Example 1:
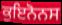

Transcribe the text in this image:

ਕੁਇਨੋਨਸ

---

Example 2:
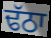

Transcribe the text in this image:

ਢੱਠਾ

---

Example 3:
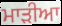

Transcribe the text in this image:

ਮਾੜੀਆ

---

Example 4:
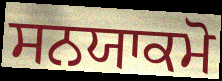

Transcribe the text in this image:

ਸਨਯਾਕਮੋ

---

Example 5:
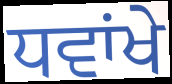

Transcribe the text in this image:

ਧਵਾਂਖੇ